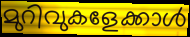
മുറിവുകളേക്കാൾ